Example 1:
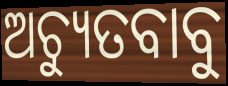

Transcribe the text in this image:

ଅଚ୍ୟୁତବାବୁ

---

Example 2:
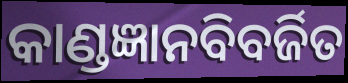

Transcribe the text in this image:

କାଣ୍ଡଜ୍ଞାନବିବର୍ଜିତ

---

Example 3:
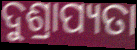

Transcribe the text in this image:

ଦୁଶ୍ରାପ୍ୟତା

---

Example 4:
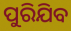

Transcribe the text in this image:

ପୁରିଯିବ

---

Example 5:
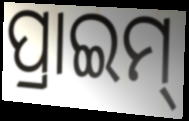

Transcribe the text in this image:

ପ୍ରାଇମ୍